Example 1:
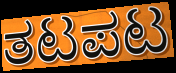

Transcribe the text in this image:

ತಟಪಟ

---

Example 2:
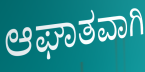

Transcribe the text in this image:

ಆಘಾತವಾಗಿ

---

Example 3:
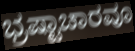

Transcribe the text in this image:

ಭ್ರಷ್ಟಾಚಾರವೂ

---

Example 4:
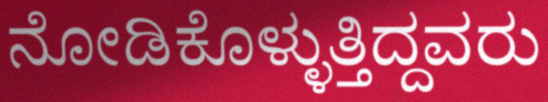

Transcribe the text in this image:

ನೋಡಿಕೊಳ್ಳುತ್ತಿದ್ದವರು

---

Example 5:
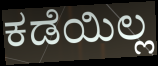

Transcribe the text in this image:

ಕಡೆಯಿಲ್ಲ